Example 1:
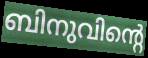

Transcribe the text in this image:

ബിനുവിന്റെ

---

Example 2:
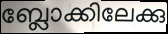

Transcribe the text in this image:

ബ്ലോക്കിലേക്കു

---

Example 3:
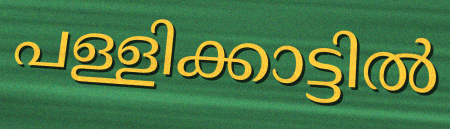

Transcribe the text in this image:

പള്ളിക്കാട്ടിൽ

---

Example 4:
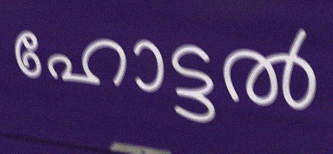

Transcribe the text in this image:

ഹോട്ടൽ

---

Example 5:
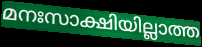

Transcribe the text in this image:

മനഃസാക്ഷിയില്ലാത്ത